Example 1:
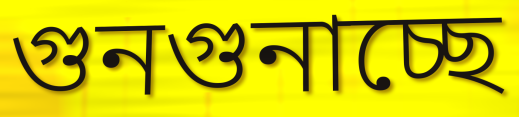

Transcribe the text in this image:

গুনগুনাচ্ছে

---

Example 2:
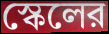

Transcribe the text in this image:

স্কেলের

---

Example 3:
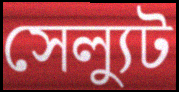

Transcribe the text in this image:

সেল্যুট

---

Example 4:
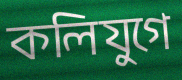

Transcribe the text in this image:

কলিযুগে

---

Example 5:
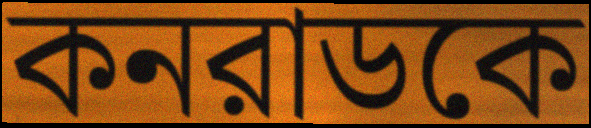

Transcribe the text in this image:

কনরাডকে